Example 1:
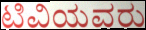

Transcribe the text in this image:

ಟಿವಿಯವರು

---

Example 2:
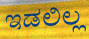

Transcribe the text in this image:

ಇಡಲಿಲ್ಲ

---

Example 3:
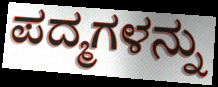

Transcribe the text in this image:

ಪದ್ಮಗಳನ್ನು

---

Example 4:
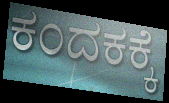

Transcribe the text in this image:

ಕಂದಕಕ್ಕೆ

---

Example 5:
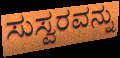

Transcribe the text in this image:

ಸುಸ್ವರವನ್ನು